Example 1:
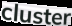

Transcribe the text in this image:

cluster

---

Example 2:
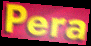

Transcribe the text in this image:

Pera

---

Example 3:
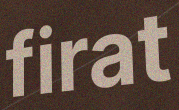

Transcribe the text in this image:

firat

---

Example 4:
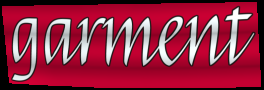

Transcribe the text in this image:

garment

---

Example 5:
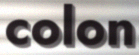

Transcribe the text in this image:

colon